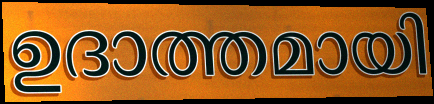
ഉദാത്തമായി